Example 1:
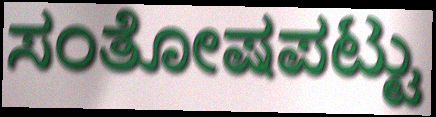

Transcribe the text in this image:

ಸಂತೋಷಪಟ್ಟು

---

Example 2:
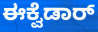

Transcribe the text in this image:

ಈಕ್ವೆಡಾರ್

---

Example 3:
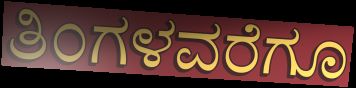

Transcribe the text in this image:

ತಿಂಗಳವರೆಗೂ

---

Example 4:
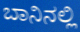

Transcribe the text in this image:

ಬಾನಿನಲ್ಲಿ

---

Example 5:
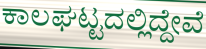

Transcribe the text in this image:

ಕಾಲಘಟ್ಟದಲ್ಲಿದ್ದೇವೆ